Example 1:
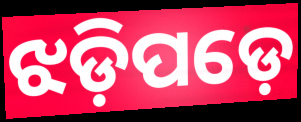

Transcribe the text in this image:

ଝଡ଼ିପଡ଼େ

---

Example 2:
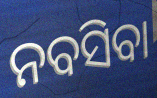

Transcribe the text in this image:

ନବସିବା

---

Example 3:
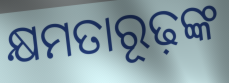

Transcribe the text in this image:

କ୍ଷମତାରୂଢ଼ଙ୍କ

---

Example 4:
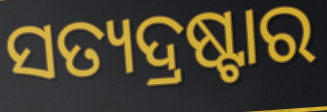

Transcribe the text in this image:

ସତ୍ୟଦ୍ରଷ୍ଟାର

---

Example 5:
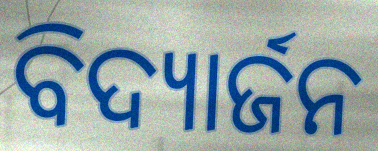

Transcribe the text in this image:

ବିଦ୍ୟାର୍ଜନ